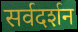
सर्वदर्शन